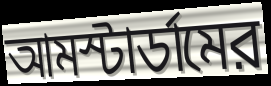
আমস্টার্ডামের